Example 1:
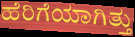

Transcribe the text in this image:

ಹೆರಿಗೆಯಾಗಿತ್ತು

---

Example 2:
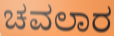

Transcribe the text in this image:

ಚವಲಾರ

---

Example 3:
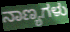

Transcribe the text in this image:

ನಾಣ್ಯಗಳು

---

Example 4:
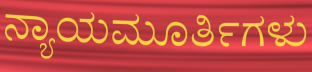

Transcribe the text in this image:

ನ್ಯಾಯಮೂರ್ತಿಗಳು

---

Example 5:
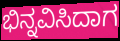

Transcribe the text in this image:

ಭಿನ್ನವಿಸಿದಾಗ